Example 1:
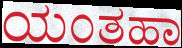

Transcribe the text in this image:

ಯಂತಹಾ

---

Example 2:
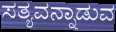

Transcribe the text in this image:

ಸತ್ಯವನ್ನಾಡುವ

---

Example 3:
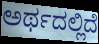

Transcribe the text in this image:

ಅರ್ಥದಲ್ಲಿದೆ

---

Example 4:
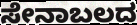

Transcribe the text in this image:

ಸೇನಾಬಲದ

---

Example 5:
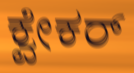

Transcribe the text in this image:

ಕ್ವೇಕರ್